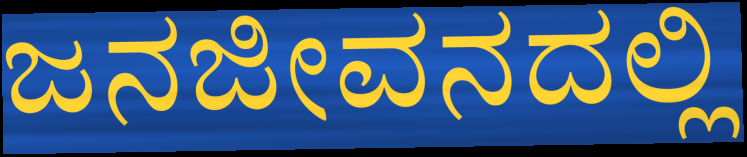
ಜನಜೀವನದಲ್ಲಿ